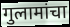
गुलामांचा